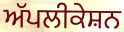
ਅੱਪਲੀਕੇਸ਼ਨ